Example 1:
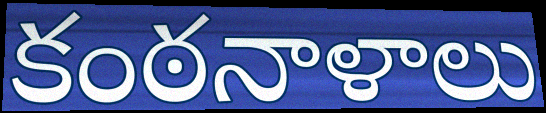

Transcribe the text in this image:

కంఠనాళాలు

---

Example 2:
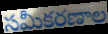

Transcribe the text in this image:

సమీకరణాల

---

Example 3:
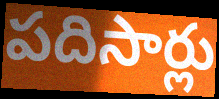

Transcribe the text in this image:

పదిసార్లు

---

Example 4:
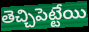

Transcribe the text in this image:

తెచ్చిపెట్టేయి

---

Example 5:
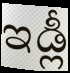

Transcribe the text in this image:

ఇడ్లీ